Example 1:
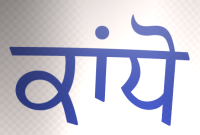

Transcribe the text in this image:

ਕਾਂਧੋ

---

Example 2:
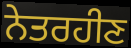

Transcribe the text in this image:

ਨੇਤਰਹੀਣ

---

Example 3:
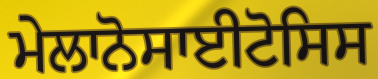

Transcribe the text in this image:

ਮੇਲਾਨੋਸਾਈਟੋਸਿਸ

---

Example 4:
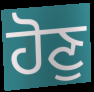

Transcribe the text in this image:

ਹੋਣੁ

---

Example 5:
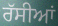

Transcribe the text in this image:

ਰੱਸੀਆਂ